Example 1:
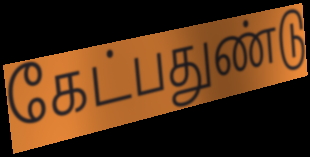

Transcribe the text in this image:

கேட்பதுண்டு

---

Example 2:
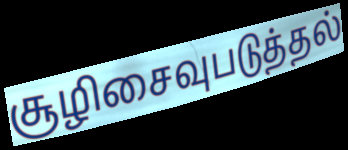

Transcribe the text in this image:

சூழிசைவுபடுத்தல்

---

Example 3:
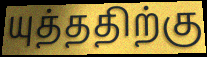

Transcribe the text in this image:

யுத்ததிற்கு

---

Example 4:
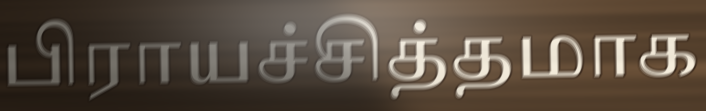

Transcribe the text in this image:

பிராயச்சித்தமாக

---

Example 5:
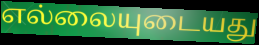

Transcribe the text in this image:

எல்லையுடையது